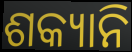
ଶକ୍ୟାନି